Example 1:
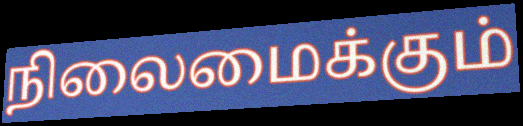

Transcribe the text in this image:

நிலைமைக்கும்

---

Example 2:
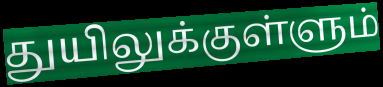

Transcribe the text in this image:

துயிலுக்குள்ளும்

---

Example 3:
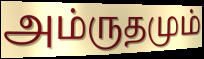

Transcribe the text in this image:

அம்ருதமும்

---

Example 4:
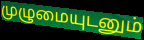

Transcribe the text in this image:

முழுமையுடனும்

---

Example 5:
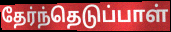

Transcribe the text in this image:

தேர்ந்தெடுப்பாள்